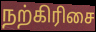
நற்கிரிசை